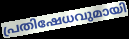
പ്രതിഷേധവുമായി